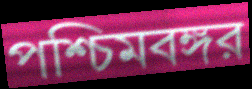
পশ্চিমবঙ্গর